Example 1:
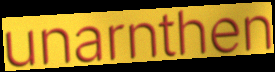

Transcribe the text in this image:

unarnthen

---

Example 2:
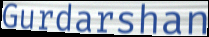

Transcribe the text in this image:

Gurdarshan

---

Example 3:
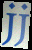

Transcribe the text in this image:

jj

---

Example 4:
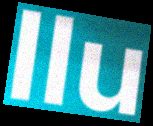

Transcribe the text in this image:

llu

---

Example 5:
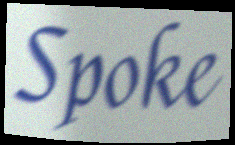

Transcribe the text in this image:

Spoke